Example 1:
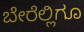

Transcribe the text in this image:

ಬೇರೆಲ್ಲಿಗೂ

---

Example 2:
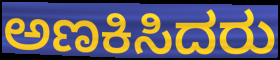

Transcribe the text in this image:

ಅಣಕಿಸಿದರು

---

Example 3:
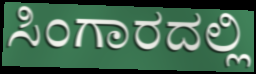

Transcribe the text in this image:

ಸಿಂಗಾರದಲ್ಲಿ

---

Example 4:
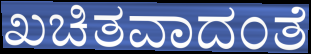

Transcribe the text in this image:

ಖಚಿತವಾದಂತೆ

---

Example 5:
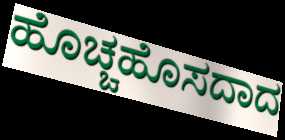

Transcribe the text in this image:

ಹೊಚ್ಚಹೊಸದಾದ